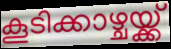
കൂടിക്കാഴ്ചയ്ക്ക്